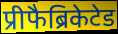
प्रीफैब्रिकेटेड